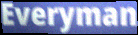
Everyman